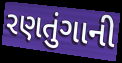
રણતુંગાની